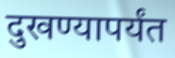
दुखण्यापर्यंत